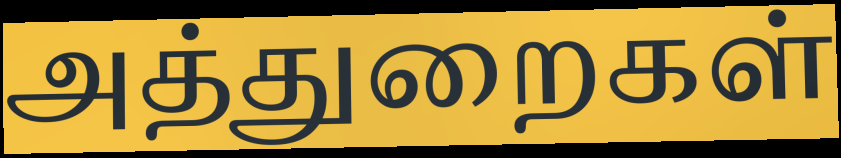
அத்துறைகள்